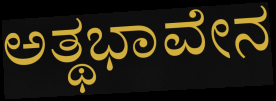
ಅತ್ಥಭಾವೇನ